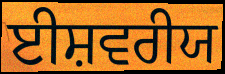
ਈਸ਼ਵਰੀਯ